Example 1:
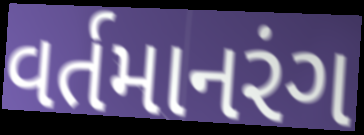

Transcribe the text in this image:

વર્તમાનરંગ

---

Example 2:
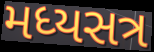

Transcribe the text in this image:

મધ્યસત્ર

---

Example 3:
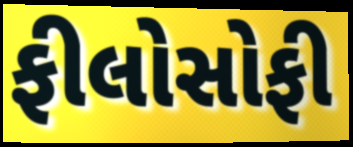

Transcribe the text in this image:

ફીલોસોફી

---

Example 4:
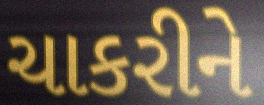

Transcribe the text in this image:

ચાકરીને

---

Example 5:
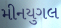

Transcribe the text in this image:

મીનયુગલ